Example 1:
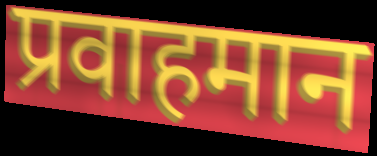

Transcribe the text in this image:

प्रवाहमान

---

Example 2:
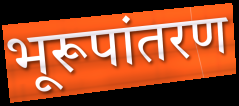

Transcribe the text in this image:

भूरूपांतरण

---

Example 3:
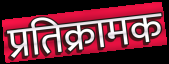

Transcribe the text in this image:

प्रतिक्रामक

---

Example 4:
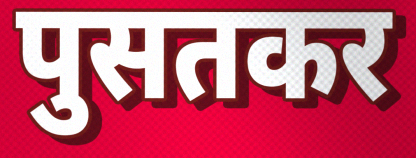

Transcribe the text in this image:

पुसतकर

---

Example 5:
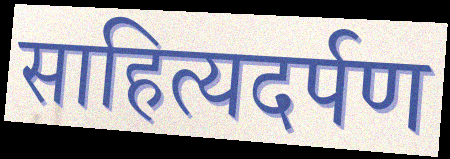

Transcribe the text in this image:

साहित्यदर्पण